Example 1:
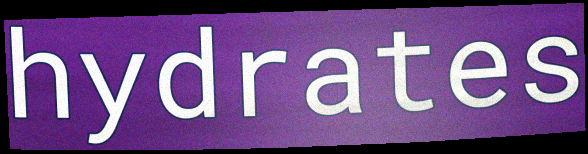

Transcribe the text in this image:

hydrates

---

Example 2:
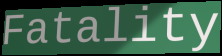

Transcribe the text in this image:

Fatality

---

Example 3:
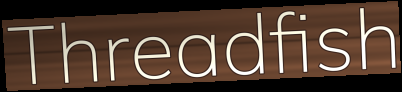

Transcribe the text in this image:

Threadfish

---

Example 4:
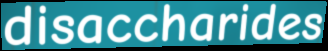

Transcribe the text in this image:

disaccharides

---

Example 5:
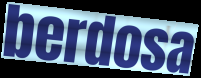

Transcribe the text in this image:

berdosa